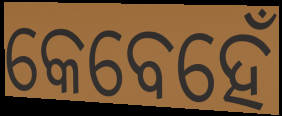
କେବେହେଁ